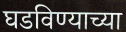
घडविण्याच्या